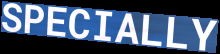
SPECIALLY